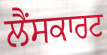
ਲੈਂਸਕਾਰਟ